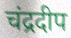
चंद्रदीप